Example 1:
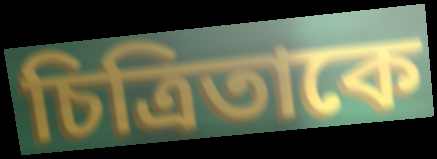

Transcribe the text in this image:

চিত্রিতাকে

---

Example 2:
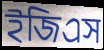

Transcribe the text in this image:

ইজিএস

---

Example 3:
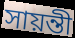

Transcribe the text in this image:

সায়ন্তী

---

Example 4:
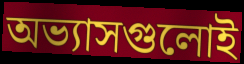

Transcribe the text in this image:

অভ্যাসগুলোই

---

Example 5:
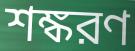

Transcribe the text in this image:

শঙ্করণ